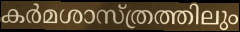
കർമശാസ്ത്രത്തിലും